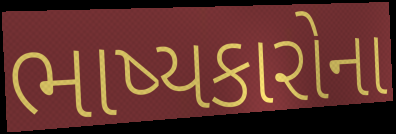
ભાષ્યકારોના